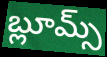
బ్లూమ్స్